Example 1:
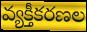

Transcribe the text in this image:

వ్యక్తీకరణల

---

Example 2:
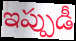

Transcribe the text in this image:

ఇప్పుడీ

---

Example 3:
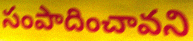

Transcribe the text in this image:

సంపాదించావని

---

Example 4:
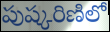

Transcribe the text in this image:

పుష్కరిణిలో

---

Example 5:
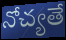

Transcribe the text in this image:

నోచ్యతే